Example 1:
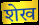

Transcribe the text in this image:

शेख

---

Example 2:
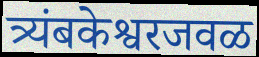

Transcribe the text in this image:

त्र्यंबकेश्वरजवळ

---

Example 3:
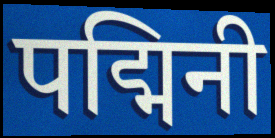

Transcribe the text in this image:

पद्मिनी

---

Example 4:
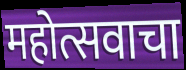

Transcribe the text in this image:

महोत्सवाचा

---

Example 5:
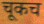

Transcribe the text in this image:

चूकच